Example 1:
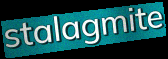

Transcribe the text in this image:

stalagmite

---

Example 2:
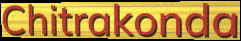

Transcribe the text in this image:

Chitrakonda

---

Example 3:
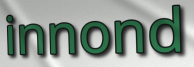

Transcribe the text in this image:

innond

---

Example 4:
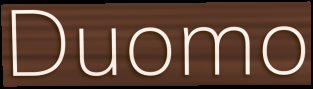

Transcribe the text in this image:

Duomo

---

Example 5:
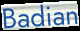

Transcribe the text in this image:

Badian